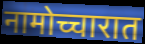
नामोच्चारात